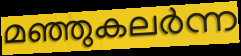
മഞ്ഞുകലർന്ന